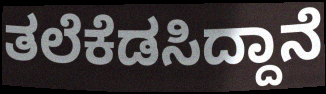
ತಲೆಕೆಡಸಿದ್ದಾನೆ